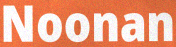
Noonan